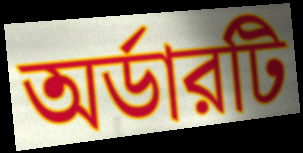
অর্ডারটি